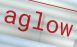
aglow